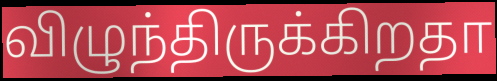
விழுந்திருக்கிறதா